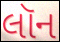
લૉન